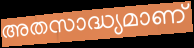
അതസാദ്ധ്യമാണ്